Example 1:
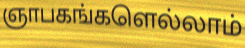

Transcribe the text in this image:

ஞாபகங்களெல்லாம்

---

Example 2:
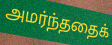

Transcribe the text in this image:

அமர்ந்ததைக்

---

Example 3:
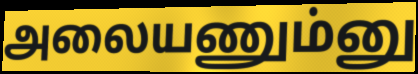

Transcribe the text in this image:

அலையணும்னு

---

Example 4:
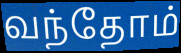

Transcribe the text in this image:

வந்தோம்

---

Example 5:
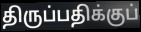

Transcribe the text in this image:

திருப்பதிக்குப்